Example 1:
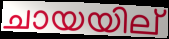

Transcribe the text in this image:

ചായയില്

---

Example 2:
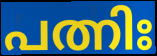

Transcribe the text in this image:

പത്നിഃ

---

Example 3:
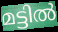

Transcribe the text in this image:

മട്ടിൽ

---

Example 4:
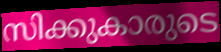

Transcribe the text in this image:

സിക്കുകാരുടെ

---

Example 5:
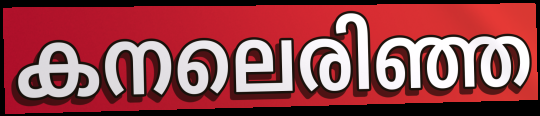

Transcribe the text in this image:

കനലെരിഞ്ഞ